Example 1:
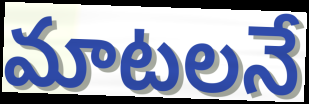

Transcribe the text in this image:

మాటలనే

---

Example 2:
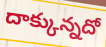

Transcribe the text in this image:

దాక్కున్నదో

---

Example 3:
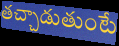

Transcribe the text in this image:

తచ్చాడుతుంటే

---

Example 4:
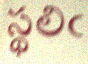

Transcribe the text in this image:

స్థలిఁ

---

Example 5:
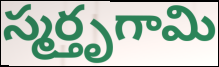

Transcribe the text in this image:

స్మర్తృగామి